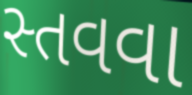
સ્તવવા